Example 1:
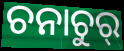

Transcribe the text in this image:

ଚନାଚୁର୍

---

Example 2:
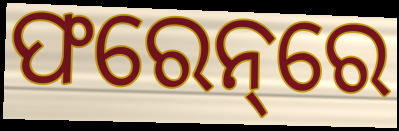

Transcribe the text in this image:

ଫରେନ୍‌ରେ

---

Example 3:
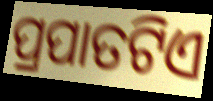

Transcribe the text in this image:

ପ୍ରପାତଟିଏ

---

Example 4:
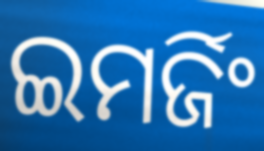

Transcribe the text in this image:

ଇମର୍ଜିଂ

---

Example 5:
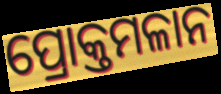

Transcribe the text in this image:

ପ୍ରୋକ୍ତମଳାନ